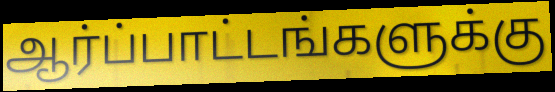
ஆர்ப்பாட்டங்களுக்கு